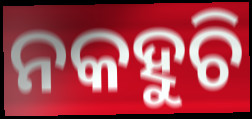
ନକହୁଚି